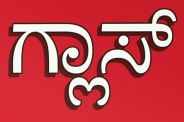
ಗ್ಲಾಸ್